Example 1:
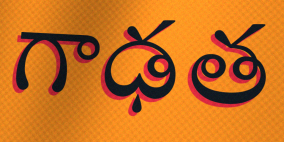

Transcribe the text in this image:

గాఢత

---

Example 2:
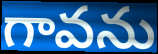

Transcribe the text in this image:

గావను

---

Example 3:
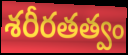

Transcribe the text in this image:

శరీరతత్వం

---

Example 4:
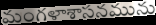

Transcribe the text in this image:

మంగళాశాసనమును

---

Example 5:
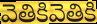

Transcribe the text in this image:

వెతికివెతికి